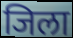
जिला